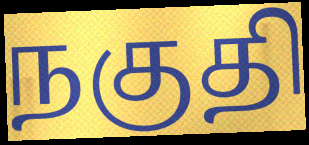
நகுதி